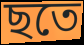
ছতে